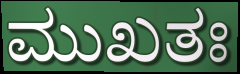
ಮುಖತಃ